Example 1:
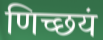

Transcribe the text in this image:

णिच्छयं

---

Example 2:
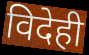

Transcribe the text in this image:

विदेही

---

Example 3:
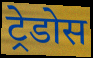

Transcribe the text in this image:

ट्रेडोस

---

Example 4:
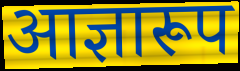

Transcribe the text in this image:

आज्ञारूप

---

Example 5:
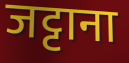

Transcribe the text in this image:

जट्टाना